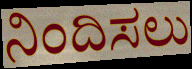
ನಿಂದಿಸಲು